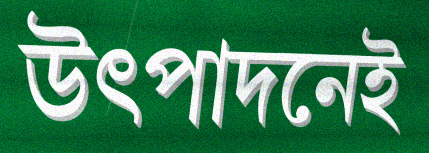
উৎপাদনেই